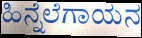
ಹಿನ್ನೆಲೆಗಾಯನ